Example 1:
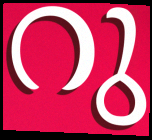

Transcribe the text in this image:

റു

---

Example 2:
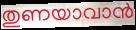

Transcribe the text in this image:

തുണയാവാൻ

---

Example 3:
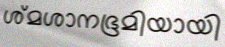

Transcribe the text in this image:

ശ്മശാനഭൂമിയായി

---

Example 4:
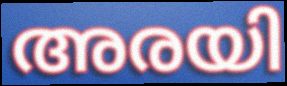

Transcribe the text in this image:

അരയി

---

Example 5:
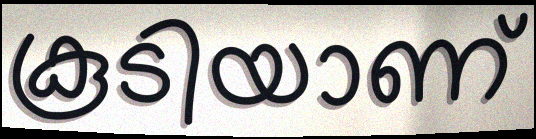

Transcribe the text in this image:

കൂടിയാണ്